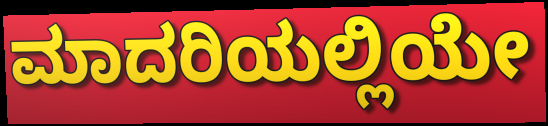
ಮಾದರಿಯಲ್ಲಿಯೇ